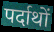
पर्दाथों